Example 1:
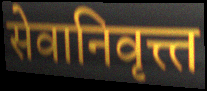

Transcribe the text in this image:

सेवानिवृत्त्त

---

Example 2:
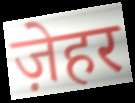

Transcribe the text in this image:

ज़ेहर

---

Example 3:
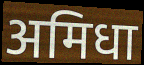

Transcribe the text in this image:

अमिधा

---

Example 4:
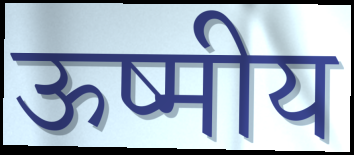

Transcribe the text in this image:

ऊष्मीय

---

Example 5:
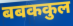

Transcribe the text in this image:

बबककुल